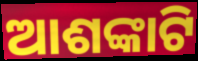
ଆଶଙ୍କାଟି